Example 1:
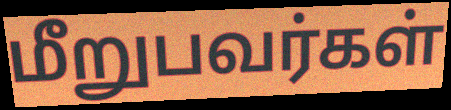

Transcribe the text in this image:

மீறுபவர்கள்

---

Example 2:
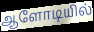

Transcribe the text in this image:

ஆளோடியில்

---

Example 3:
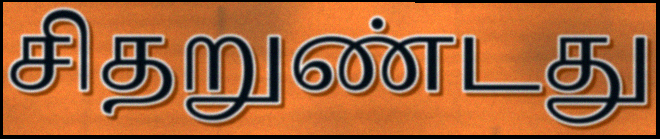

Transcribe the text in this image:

சிதறுண்டது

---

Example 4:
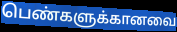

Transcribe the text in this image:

பெண்களுக்கானவை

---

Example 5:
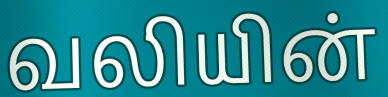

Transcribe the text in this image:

வலியின்